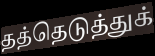
தத்தெடுத்துக்